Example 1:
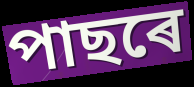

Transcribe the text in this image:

পাছৰে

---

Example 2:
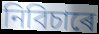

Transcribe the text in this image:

নিবিচাৰে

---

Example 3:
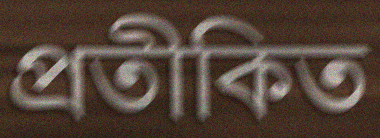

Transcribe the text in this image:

প্ৰতীকিত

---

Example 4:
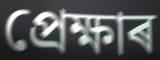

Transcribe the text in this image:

প্ৰেক্ষাৰ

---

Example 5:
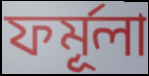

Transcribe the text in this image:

ফৰ্মূলা